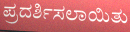
ಪ್ರದರ್ಶಿಸಲಾಯಿತು